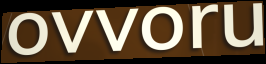
ovvoru